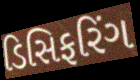
ડિસિફરિંગ